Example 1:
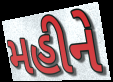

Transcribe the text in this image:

મહીને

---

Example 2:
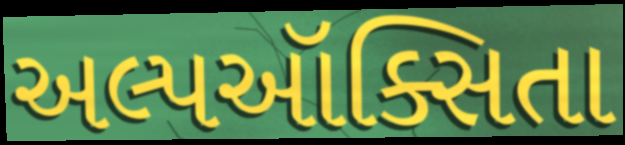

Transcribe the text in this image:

અલ્પઑક્સિતા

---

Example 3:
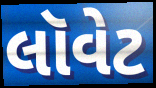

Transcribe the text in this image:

લૉવેટ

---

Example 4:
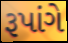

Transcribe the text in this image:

રૂપાંગે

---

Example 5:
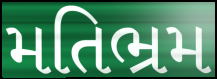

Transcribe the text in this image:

મતિભ્રમ